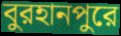
বুরহানপুরে